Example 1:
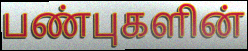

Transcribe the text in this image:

பண்புகளின்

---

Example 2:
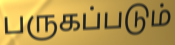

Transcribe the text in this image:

பருகப்படும்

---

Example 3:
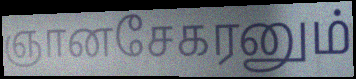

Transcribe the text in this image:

ஞானசேகரனும்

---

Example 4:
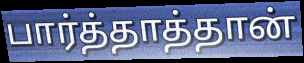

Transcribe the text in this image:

பார்த்தாத்தான்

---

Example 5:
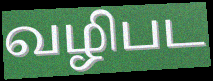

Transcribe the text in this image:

வழிபட